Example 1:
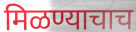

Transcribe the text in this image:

मिळण्याचाच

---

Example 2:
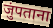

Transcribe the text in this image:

जुंपताना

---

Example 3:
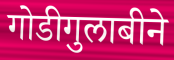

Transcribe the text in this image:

गोडीगुलाबीने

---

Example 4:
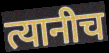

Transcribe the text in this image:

त्यानीच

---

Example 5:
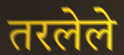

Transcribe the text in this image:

तरलेले